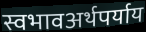
स्वभावअर्थपर्याय